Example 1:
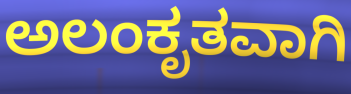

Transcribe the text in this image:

ಅಲಂಕೃತವಾಗಿ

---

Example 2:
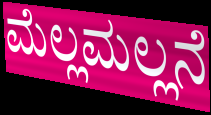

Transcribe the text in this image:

ಮೆಲ್ಲಮಲ್ಲನೆ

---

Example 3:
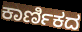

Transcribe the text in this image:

ಕಾರ್ಣಿಕದ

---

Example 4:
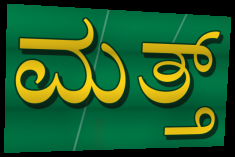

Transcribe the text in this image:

ಮತ್ತ್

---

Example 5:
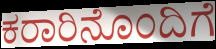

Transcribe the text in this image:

ಕರಾರಿನೊಂದಿಗೆ